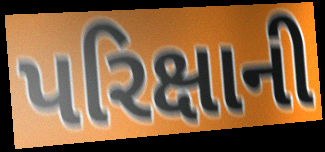
પરિક્ષાની